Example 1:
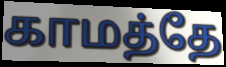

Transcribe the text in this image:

காமத்தே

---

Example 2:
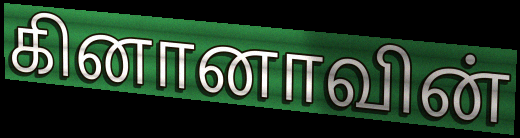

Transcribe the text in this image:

கினானாவின்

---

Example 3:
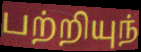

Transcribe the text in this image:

பற்றியுந்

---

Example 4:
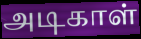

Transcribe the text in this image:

அடிகாள்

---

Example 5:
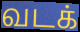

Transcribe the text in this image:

வடக்